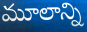
మూలాన్ని